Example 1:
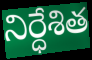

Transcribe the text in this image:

నిర్ధేశిత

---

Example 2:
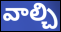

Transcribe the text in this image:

వాల్చి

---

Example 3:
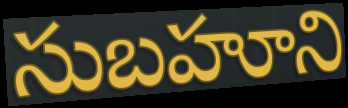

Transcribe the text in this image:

సుబహూని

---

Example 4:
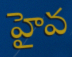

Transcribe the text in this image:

హైవ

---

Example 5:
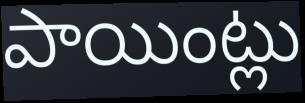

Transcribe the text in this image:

పాయింట్లు